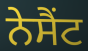
ਨੇਸੈਂਟ